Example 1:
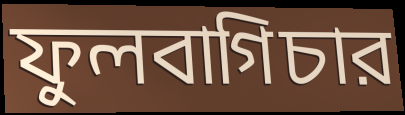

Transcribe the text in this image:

ফুলবাগিচার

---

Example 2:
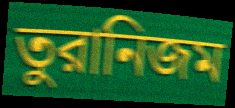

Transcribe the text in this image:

তুরানিজম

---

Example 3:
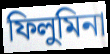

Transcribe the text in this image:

ফিলুমিনা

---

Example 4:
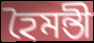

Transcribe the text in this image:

হৈমন্তী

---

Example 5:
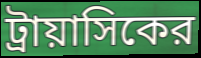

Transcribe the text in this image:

ট্রায়াসিকের